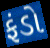
ફંડો